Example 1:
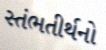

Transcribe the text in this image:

સ્તંભતીર્થનો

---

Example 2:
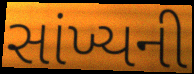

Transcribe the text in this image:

સાંખ્યની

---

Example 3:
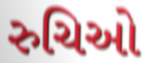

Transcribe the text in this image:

રુચિઓ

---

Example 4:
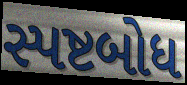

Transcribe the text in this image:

સ્પષ્ટબોધ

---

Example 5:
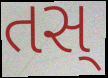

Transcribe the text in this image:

તસ્